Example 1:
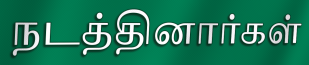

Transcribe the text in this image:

நடத்தினார்கள்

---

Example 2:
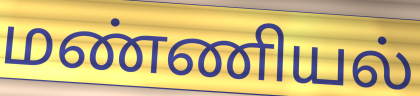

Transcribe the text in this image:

மண்ணியல்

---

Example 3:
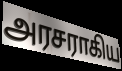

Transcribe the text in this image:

அரசராகிய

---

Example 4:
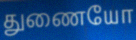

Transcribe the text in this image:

துணையோ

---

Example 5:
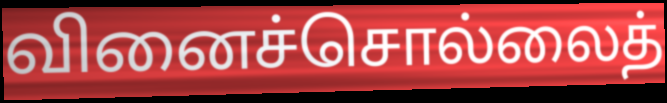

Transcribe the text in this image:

வினைச்சொல்லைத்